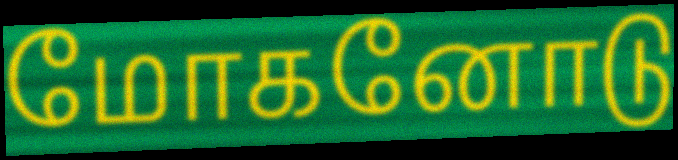
மோகனோடு